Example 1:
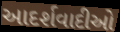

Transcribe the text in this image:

આદર્શવાદીઓ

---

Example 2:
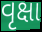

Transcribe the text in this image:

વૃક્ષા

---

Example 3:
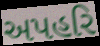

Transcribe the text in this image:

અપહરિ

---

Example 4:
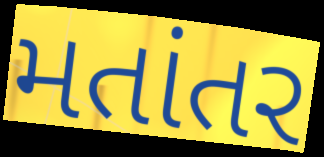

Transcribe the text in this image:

મતાંતર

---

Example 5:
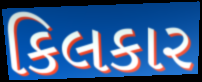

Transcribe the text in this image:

કિલકાર